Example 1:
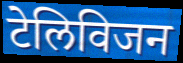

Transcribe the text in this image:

टेलिविजन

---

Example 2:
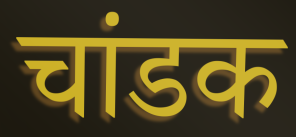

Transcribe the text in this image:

चांडक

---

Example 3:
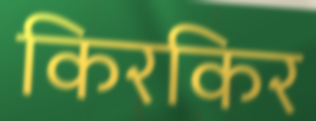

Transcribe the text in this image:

किरकिर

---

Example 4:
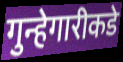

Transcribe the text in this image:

गुन्हेगारीकडे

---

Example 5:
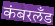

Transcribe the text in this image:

कंबरलँड